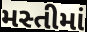
મસ્તીમાં